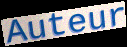
Auteur